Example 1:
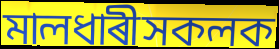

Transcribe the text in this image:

মালধাৰীসকলক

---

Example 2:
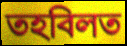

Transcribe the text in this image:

তহবিলত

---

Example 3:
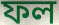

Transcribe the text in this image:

ফল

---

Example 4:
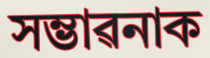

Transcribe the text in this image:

সম্ভাৱনাক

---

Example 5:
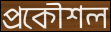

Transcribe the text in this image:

প্ৰকৌশল